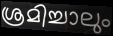
ശ്രമിച്ചാലും